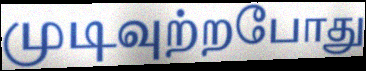
முடிவுற்றபோது